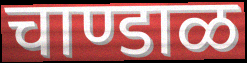
चाण्डाळ